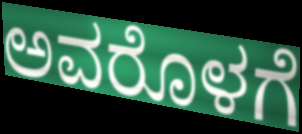
ಅವರೊಳಗೆ